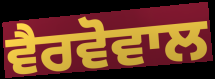
ਵੈਰਵੋਵਾਲ